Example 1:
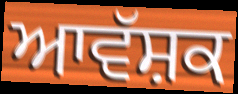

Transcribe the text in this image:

ਆਵੱਸ਼ਕ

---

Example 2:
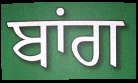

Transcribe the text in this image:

ਬਾਂਗ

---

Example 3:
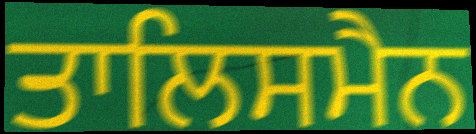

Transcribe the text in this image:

ਤਾਲਿਸਮੈਨ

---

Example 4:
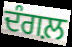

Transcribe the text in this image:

ਦੰਗਲ਼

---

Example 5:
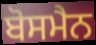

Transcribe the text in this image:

ਬੋਸਮੈਨ